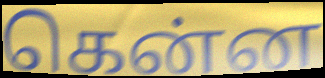
கென்ன